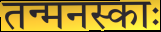
तन्मनस्काः